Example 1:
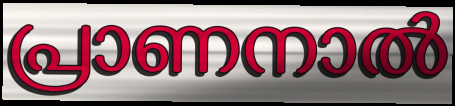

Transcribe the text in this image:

പ്രാണനാൽ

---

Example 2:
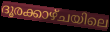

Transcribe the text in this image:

ദൂരക്കാഴ്ചയിലെ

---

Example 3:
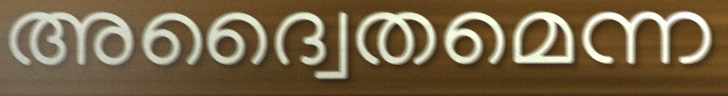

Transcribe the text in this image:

അദ്വൈതമെന്ന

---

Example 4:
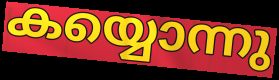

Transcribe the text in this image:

കയ്യൊന്നു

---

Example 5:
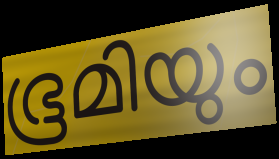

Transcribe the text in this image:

ഭൂമിയും